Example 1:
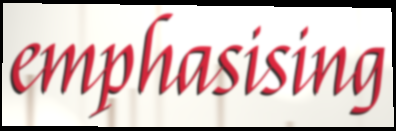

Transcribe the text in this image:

emphasising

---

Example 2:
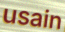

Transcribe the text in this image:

usain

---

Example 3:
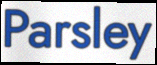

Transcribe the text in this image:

Parsley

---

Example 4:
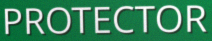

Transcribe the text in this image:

PROTECTOR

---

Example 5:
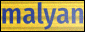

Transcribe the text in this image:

malyan